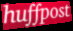
huffpost